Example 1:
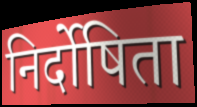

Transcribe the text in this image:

निर्दोषिता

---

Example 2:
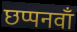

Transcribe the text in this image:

छप्पनवाँ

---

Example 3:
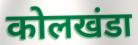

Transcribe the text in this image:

कोलखंडा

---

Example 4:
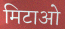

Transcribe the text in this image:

मिटाओ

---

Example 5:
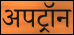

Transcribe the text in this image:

अपट्रॉन